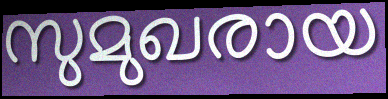
സുമുഖരായ